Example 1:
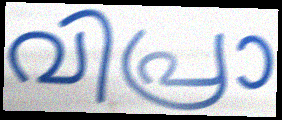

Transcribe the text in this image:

വിപ്രാ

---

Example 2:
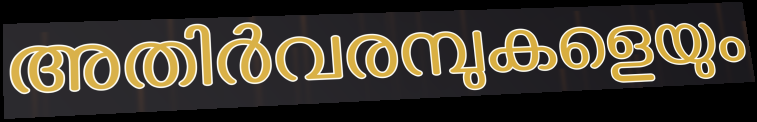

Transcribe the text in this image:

അതിർവരമ്പുകളെയും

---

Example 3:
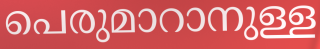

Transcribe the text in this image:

പെരുമാറാനുള്ള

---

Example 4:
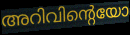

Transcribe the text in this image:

അറിവിന്റെയോ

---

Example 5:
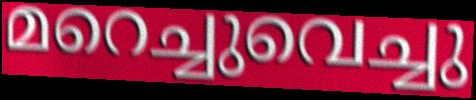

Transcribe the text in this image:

മറെച്ചുവെച്ചു